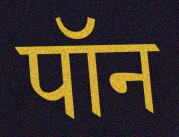
पॉन